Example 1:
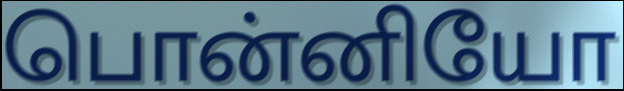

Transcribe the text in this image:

பொன்னியோ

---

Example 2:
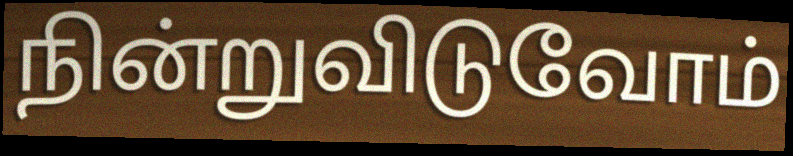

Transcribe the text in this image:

நின்றுவிடுவோம்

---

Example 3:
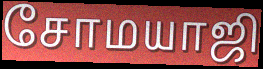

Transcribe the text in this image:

சோமயாஜி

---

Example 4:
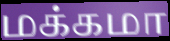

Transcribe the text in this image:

மக்கமா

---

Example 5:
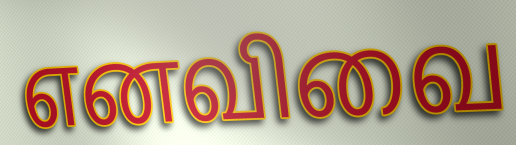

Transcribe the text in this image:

எனவிவை